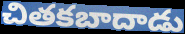
చితకబాదాడు